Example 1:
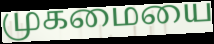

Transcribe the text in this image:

முகமையை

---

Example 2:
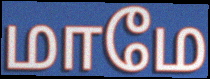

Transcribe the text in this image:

மாமே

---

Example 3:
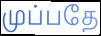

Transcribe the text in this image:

முப்பதே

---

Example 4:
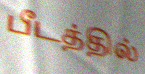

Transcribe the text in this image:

பீடத்தில்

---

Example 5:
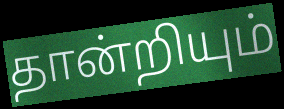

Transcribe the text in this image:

தான்றியும்